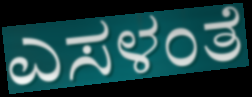
ಎಸಳಂತೆ